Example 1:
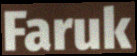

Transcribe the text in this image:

Faruk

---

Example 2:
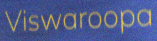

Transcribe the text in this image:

Viswaroopa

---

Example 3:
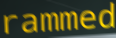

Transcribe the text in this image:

rammed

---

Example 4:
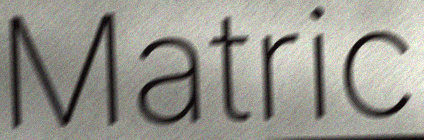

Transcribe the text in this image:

Matric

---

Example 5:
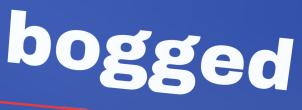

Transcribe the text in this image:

bogged